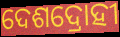
ଦେଶଦ୍ରୋହୀ